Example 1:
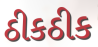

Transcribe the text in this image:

ઠીકઠીક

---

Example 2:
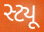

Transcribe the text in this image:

સ્ટ્યૂ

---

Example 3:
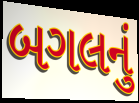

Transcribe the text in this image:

બગલનું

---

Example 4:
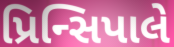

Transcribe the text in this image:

પ્રિન્સિપાલે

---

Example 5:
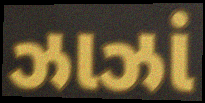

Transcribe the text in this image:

ઝાઝાં